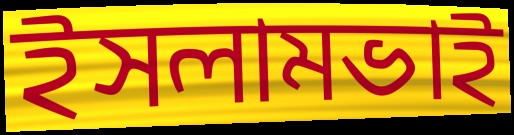
ইসলামভাই